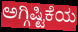
ಅಗ್ಗಿಷ್ಟಿಕೆಯ